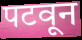
पटवून